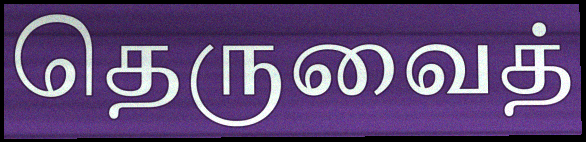
தெருவைத்